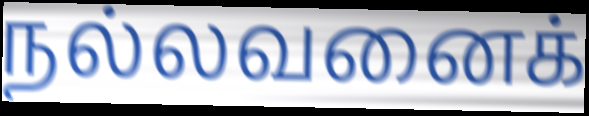
நல்லவனைக்